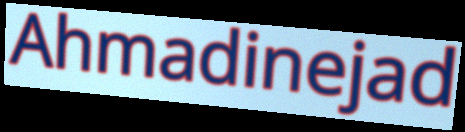
Ahmadinejad